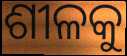
ଶୀଳକୁ